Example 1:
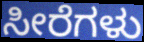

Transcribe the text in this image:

ಸೀರೆಗಳು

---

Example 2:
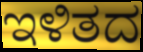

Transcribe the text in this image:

ಇಳಿತದ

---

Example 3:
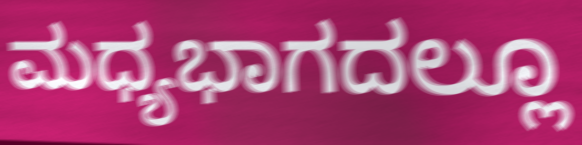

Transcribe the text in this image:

ಮಧ್ಯಭಾಗದಲ್ಲೂ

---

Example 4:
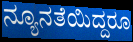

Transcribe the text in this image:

ನ್ಯೂನತೆಯಿದ್ದರೂ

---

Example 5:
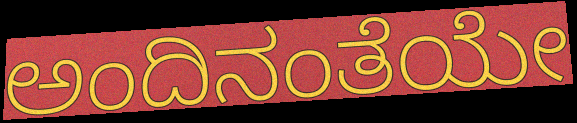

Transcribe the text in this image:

ಅಂದಿನಂತೆಯೇ